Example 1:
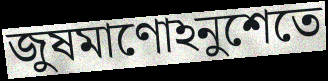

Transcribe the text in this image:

জুষমাণোঽনুশেতে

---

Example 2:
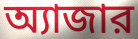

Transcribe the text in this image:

অ্যাজার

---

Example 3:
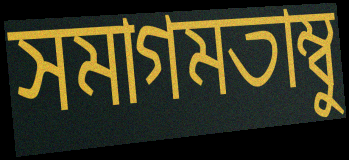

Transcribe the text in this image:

সমাগমতাম্বু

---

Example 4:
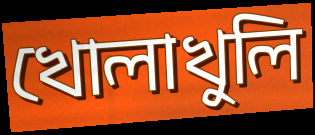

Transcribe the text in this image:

খোলাখুলি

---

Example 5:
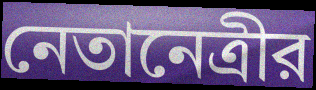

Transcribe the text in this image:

নেতানেত্রীর